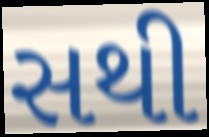
સથી